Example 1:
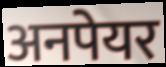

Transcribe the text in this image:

अनपेयर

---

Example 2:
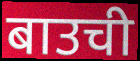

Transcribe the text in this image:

बाउची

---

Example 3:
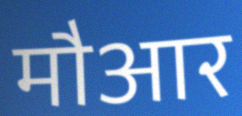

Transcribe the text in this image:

मौआर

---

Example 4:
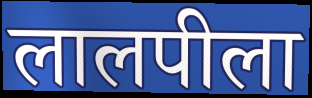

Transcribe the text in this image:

लालपीला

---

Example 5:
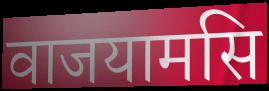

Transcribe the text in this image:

वाजयामसि